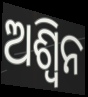
ଅଶ୍ଵିନ